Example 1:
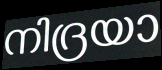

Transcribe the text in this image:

നിദ്രയാ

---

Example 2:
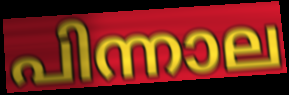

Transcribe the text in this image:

പിന്നാല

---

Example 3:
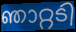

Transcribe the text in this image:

ഞാറ്റടി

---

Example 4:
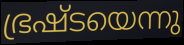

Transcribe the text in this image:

ഭ്രഷ്ടയെന്നു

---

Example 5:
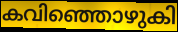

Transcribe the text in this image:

കവിഞ്ഞൊഴുകി